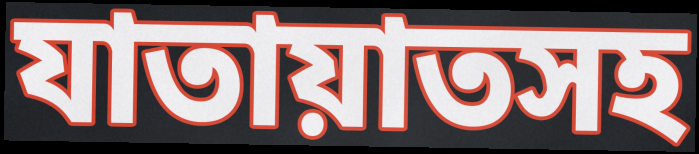
যাতায়াতসহ